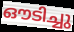
ഔടിച്ചു